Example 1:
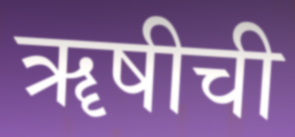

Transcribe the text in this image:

ॠषीची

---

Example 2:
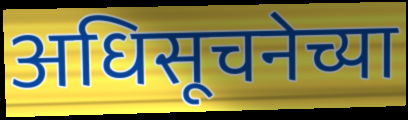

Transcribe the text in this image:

अधिसूचनेच्या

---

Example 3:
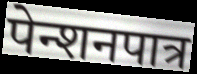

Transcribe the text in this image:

पेन्शनपात्र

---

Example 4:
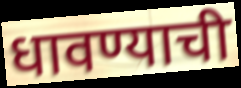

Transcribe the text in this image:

धावण्याची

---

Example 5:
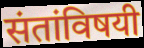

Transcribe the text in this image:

संतांविषयी